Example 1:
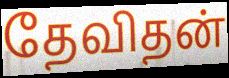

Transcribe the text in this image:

தேவிதன்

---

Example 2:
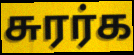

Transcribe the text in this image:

சுரர்க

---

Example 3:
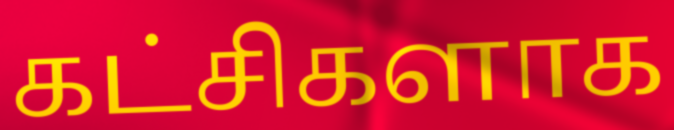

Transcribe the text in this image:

கட்சிகளாக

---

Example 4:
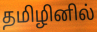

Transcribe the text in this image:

தமிழினில்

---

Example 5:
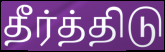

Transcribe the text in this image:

தீர்த்திடு